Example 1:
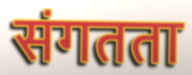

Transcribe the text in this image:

संगतता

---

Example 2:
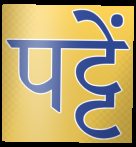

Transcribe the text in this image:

पट्टें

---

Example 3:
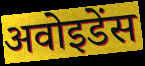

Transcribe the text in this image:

अवोइडेंस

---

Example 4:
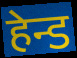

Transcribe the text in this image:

हेन्ड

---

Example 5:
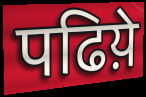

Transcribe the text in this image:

पढिय़े